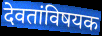
देवतांविषयक